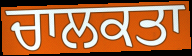
ਚਾਲਕਤਾ